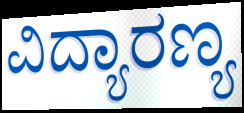
ವಿದ್ಯಾರಣ್ಯ